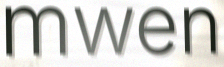
mwen